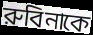
রুবিনাকে